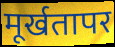
मूर्खतापर